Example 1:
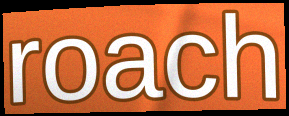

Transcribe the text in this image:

roach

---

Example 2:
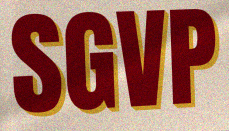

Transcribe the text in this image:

SGVP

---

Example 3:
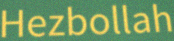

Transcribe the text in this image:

Hezbollah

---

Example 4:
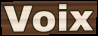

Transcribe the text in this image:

Voix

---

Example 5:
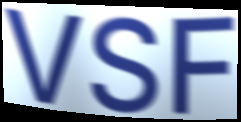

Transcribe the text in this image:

VSF